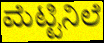
ಮೆಟ್ಟಿನಿಲೆ